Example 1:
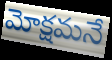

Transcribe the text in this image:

మోక్షమనే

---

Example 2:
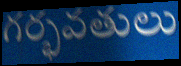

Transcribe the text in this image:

గర్భవతులు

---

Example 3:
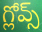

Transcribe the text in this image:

గ్లోవ్స్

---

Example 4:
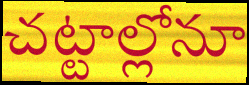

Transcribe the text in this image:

చట్టాల్లోనూ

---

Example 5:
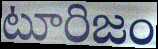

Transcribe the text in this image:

టూరిజం